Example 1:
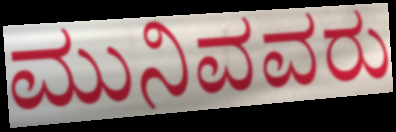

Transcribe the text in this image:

ಮುನಿವವರು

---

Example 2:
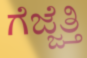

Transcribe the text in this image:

ಗೆಜ್ಜೆತ್ತಿ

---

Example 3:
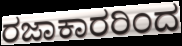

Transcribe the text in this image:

ರಜಾಕಾರರಿಂದ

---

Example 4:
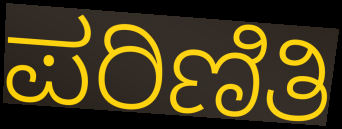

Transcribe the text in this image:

ಪರಿಣಿತಿ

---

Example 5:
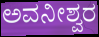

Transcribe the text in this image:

ಅವನೀಶ್ವರ